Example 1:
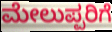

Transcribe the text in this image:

ಮೇಲುಪ್ಪರಿಗೆ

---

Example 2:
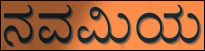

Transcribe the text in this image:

ನವಮಿಯ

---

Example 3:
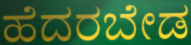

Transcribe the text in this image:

ಹೆದರಬೇಡ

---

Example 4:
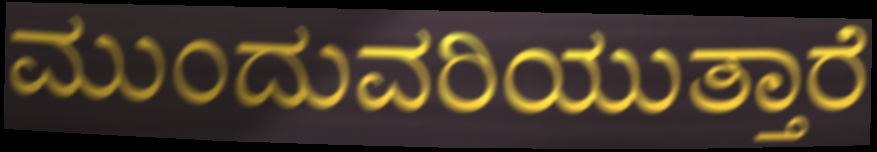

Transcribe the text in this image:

ಮುಂದುವರಿಯುತ್ತಾರೆ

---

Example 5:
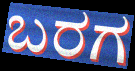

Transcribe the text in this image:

ಬರಗ